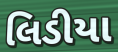
લિડીયા